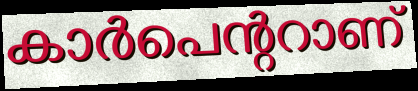
കാർപെന്ററാണ്